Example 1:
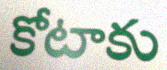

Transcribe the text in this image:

కోటాకు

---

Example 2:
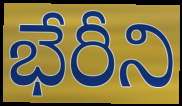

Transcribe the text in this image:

భేరీని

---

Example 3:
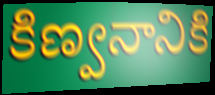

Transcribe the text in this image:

కిణ్వనానికి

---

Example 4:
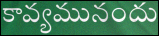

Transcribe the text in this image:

కావ్యమునందు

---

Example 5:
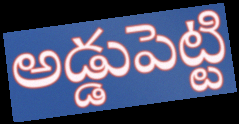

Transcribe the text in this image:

అడ్డుపెట్టి